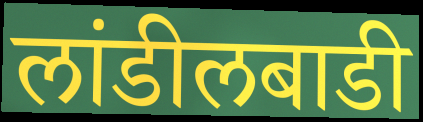
लांडीलबाडी